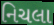
નિચલા